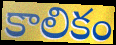
కాలికం